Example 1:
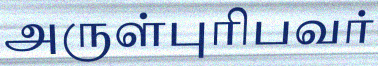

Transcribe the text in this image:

அருள்புரிபவர்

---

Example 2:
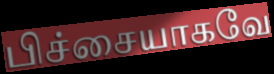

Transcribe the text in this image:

பிச்சையாகவே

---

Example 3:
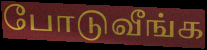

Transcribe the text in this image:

போடுவீங்க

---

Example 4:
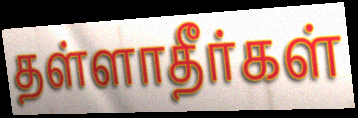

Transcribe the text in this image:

தள்ளாதீர்கள்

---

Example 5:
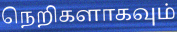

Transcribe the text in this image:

நெறிகளாகவும்